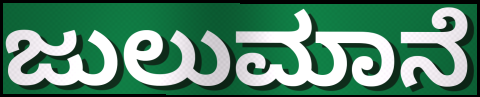
ಜುಲುಮಾನೆ